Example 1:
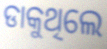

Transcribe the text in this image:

ଡାକୁଥିଲେ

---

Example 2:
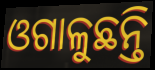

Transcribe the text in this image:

ଓଗାଳୁଛନ୍ତି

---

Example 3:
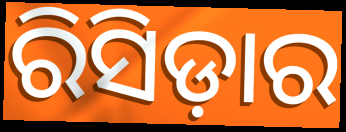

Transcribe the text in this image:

ରିସିଡ଼ାର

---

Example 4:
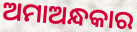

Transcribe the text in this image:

ଅମାଅନ୍ଧକାର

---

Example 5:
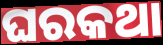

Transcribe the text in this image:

ଘରକଥା